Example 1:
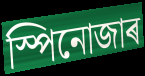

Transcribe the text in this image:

স্পিনোজাৰ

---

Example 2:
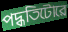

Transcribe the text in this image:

পদ্ধতিটোৱে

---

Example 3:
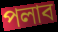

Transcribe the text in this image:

পলাব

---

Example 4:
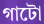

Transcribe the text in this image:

গাটো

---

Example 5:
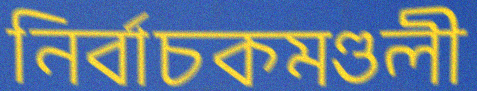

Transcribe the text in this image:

নিৰ্বাচকমণ্ডলী